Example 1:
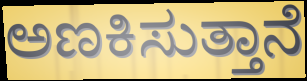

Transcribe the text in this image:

ಅಣಕಿಸುತ್ತಾನೆ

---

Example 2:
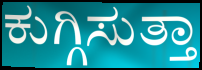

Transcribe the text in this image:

ಕುಗ್ಗಿಸುತ್ತಾ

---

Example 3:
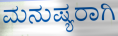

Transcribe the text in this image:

ಮನುಷ್ಯರಾಗಿ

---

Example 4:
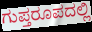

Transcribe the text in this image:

ಗುಪ್ತರೂಪದಲ್ಲಿ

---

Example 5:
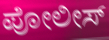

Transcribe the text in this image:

ಪೋಲೀಸ್